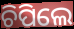
ଚିପିଲେ